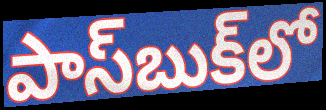
పాస్‌బుక్‌లో